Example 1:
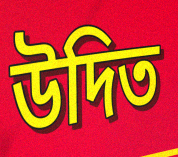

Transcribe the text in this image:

উদিত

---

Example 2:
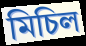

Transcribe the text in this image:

মিচিল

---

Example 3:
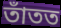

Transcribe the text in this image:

তাঁতত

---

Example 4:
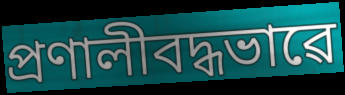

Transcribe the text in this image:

প্ৰণালীবদ্ধভাৱে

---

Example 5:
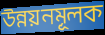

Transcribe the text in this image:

উন্নয়নমূলক